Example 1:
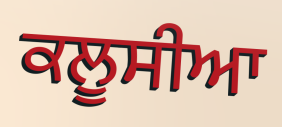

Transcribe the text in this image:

ਕਲੂਸੀਆ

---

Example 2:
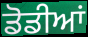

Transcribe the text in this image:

ਡੋਡੀਆਂ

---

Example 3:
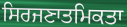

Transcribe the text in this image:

ਸਿਰਜਣਾਤਮਿਕਤਾ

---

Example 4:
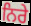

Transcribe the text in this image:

ਨਿਰੇ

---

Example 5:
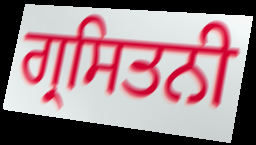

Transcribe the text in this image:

ਗ੍ਰਸਿਤਨੀ